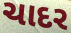
ચાદર